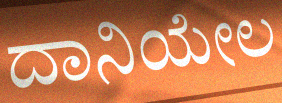
ದಾನಿಯೇಲ